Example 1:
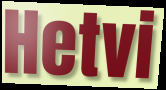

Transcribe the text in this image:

Hetvi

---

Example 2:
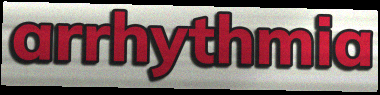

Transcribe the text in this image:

arrhythmia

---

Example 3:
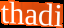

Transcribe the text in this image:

thadi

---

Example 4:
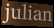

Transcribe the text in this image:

julian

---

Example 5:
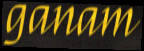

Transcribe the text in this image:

ganam